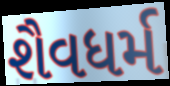
શૈવધર્મ